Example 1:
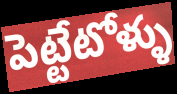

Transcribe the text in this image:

పెట్టేటోళ్ళు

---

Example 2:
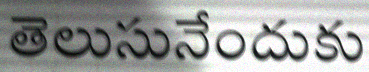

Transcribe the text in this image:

తెలుసునేందుకు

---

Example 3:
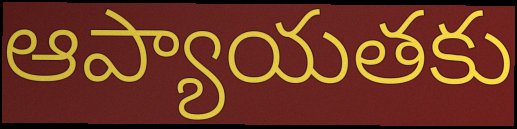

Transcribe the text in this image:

ఆప్యాయతకు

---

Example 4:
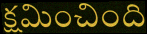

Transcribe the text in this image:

క్షమించింది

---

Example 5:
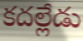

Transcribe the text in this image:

కదల్లేడు